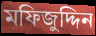
মফিজুদ্দিন